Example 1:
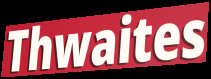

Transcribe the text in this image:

Thwaites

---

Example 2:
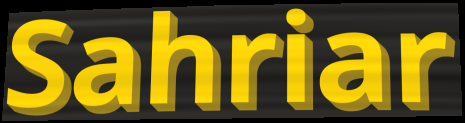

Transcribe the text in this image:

Sahriar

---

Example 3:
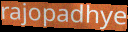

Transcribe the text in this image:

rajopadhye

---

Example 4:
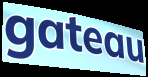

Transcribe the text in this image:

gateau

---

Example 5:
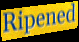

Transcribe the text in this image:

Ripened